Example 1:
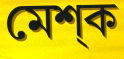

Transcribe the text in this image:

মেশ্ক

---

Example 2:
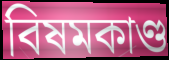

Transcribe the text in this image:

বিষমকাণ্ড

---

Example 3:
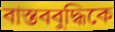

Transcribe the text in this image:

বাস্তববুদ্ধিকে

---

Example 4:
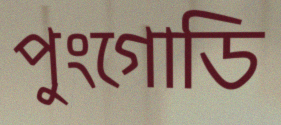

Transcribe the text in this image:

পুংগোডি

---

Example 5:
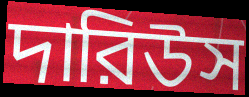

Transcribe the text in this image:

দারিউস